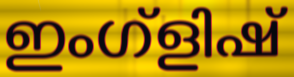
ഇംഗ്ളിഷ്